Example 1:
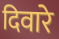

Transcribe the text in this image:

दिवारे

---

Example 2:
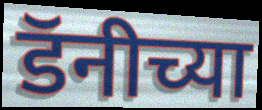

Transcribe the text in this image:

डॅनीच्या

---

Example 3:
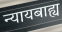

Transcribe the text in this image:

न्यायबाह्य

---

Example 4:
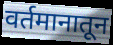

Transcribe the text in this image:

वर्तमानातून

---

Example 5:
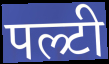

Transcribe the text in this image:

पल्टी